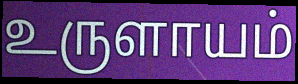
உருளாயம்